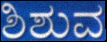
ಶಿಶುವ